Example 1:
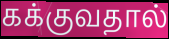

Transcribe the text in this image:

கக்குவதால்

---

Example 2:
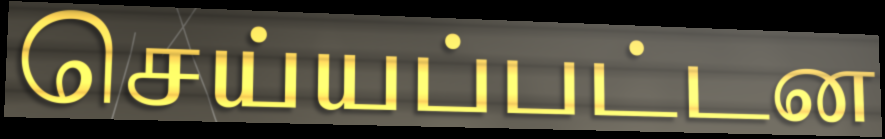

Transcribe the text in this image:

செய்யப்பட்டன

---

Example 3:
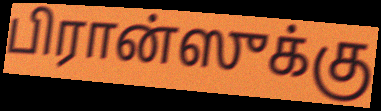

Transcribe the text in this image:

பிரான்ஸுக்கு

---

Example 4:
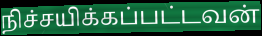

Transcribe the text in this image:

நிச்சயிக்கப்பட்டவன்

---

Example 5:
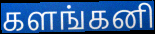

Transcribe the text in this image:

களங்கனி